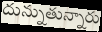
దున్నుతున్నారు